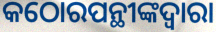
କଠୋରପନ୍ଥୀଙ୍କଦ୍ୱାରା